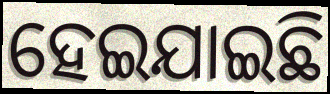
ହେଇଯାଇଛି